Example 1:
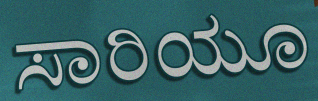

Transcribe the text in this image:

ಸಾರಿಯೂ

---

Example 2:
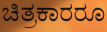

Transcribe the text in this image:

ಚಿತ್ರಕಾರರೂ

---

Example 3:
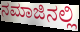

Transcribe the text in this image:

ನಮಾಜಿನಲ್ಲಿ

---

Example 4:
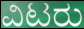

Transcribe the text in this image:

ವಿಟರು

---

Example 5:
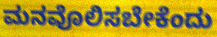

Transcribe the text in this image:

ಮನವೊಲಿಸಬೇಕೆಂದು